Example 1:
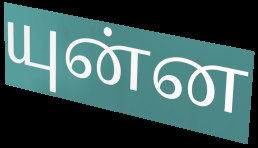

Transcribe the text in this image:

யுன்ன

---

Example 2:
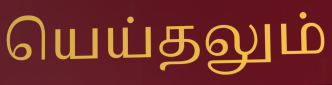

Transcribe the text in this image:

யெய்தலும்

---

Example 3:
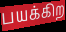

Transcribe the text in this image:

பயக்கிற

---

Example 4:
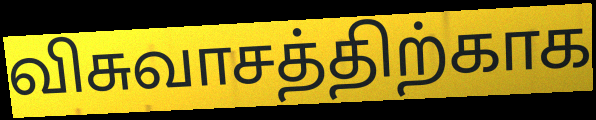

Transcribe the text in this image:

விசுவாசத்திற்காக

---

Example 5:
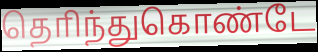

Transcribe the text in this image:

தெரிந்துகொண்டே